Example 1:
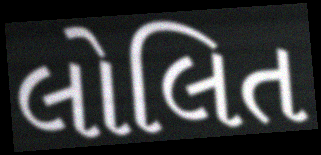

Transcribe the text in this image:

લોલિત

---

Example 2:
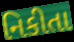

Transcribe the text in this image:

નિકીતા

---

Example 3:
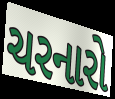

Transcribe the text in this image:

ચરનારો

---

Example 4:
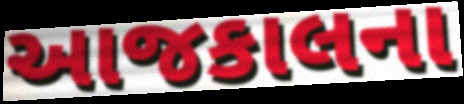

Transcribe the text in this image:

આજકાલના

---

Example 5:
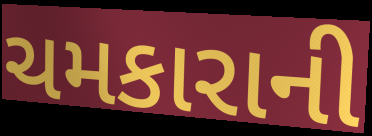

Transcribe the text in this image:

ચમકારાની